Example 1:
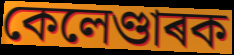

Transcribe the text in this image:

কেলেণ্ডাৰক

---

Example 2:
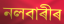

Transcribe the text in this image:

নলবাৰীৰ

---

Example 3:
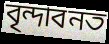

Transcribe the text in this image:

বৃন্দাবনত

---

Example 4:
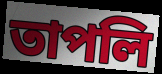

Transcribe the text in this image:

তাপলি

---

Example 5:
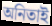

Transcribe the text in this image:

অনিতাই